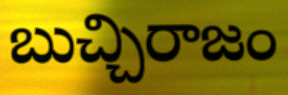
బుచ్చిరాజం